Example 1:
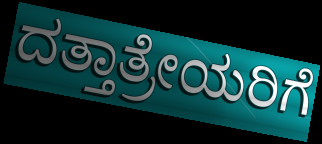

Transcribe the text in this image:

ದತ್ತಾತ್ರೇಯರಿಗೆ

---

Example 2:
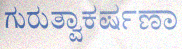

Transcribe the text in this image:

ಗುರುತ್ವಾಕರ್ಷಣಾ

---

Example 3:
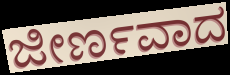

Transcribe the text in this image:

ಜೀರ್ಣವಾದ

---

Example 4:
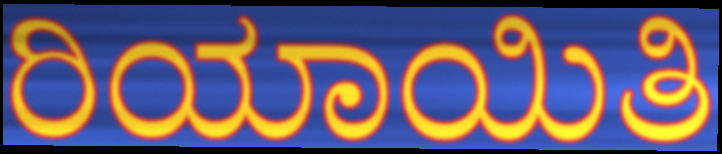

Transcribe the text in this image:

ರಿಯಾಯಿತಿ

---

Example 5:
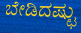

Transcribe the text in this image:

ಬೇಡಿದಷ್ಟು